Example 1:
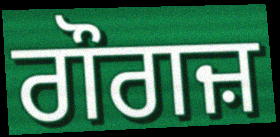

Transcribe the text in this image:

ਗੌਗਜ਼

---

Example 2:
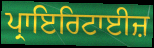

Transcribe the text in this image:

ਪ੍ਰਾਇਰਿਟਾਈਜ਼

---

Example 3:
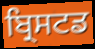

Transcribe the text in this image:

ਬ੍ਰਿਸਟਡ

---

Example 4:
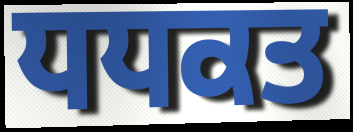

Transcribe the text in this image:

ਧਧਕਤ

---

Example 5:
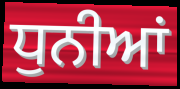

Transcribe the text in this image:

ਧੁਨੀਆਂ